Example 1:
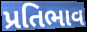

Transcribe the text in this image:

પ્રતિભાવ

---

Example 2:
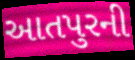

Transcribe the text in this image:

આતપુરની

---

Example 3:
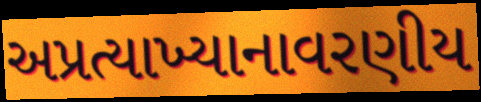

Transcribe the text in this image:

અપ્રત્યાખ્યાનાવરણીય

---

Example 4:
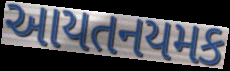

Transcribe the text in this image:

આયતનયમક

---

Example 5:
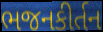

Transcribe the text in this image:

ભજનકીર્તન